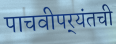
पाचवीपर्यंतची